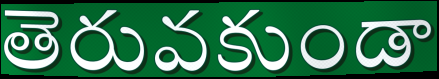
తెరువకుండా